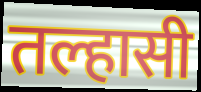
तल्हासी